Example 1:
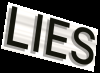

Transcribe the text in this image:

LIES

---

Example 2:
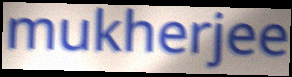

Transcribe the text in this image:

mukherjee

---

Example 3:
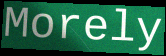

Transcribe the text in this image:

Morely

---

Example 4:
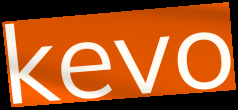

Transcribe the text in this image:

kevo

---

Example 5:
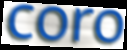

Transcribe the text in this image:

coro